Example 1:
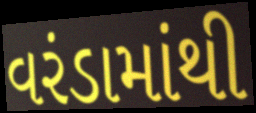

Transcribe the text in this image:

વરંડામાંથી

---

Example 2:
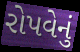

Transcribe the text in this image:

રોપવેનું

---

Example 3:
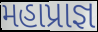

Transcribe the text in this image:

મહાપ્રાજ્ઞ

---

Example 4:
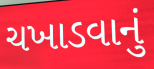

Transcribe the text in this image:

ચખાડવાનું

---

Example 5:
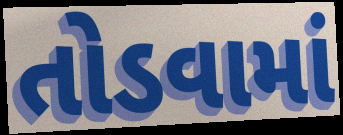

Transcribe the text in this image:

તોડવામાં